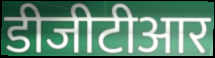
डीजीटीआर